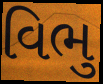
વિભુ